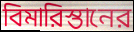
বিমারিস্তানের